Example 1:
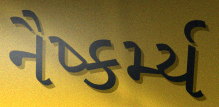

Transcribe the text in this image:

નૈષ્કર્મ્ય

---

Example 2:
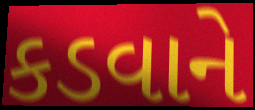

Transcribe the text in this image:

કડવાને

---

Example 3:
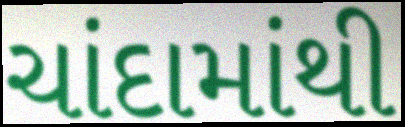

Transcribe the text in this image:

ચાંદામાંથી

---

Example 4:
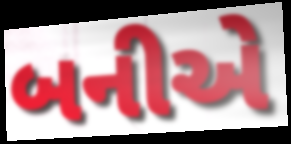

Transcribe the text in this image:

બનીએ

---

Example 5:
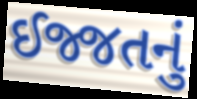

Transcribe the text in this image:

ઈજ્જતનું